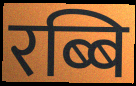
रब्बि